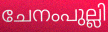
ചേനംപുല്ലി